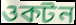
ওকটন